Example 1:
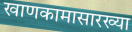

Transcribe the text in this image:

खाणकामासारख्या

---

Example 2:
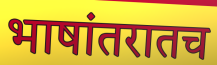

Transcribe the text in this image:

भाषांतरातच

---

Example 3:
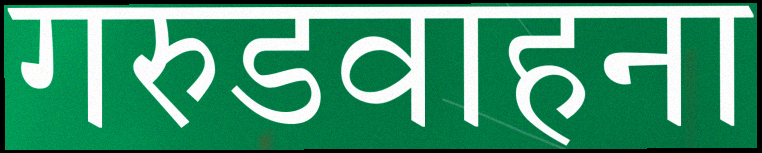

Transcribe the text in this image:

गरुडवाहना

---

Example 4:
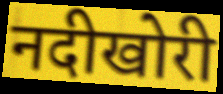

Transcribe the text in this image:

नदीखोरी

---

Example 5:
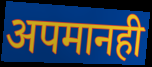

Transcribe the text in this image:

अपमानही